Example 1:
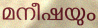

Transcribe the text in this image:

മനീഷയും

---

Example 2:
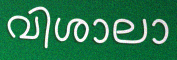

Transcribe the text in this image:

വിശാലാ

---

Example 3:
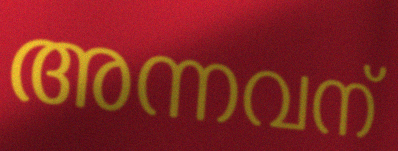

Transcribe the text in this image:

അന്നവന്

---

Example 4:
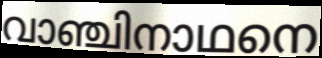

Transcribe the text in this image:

വാഞ്ചിനാഥനെ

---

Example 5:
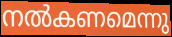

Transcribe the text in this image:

നൽകണമെന്നു